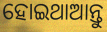
ହୋଇଥାଆନ୍ତୁ